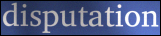
disputation